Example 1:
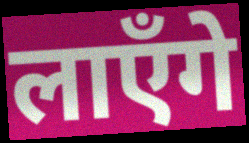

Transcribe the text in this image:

लाएँगे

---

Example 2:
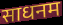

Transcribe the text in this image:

साधनम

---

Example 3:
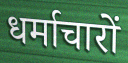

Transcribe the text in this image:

धर्माचारों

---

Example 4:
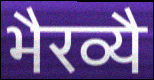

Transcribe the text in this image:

भैरव्यै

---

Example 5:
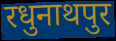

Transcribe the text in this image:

रधुनाथपुर